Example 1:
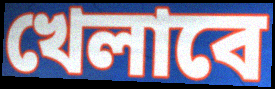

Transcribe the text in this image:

খেলাবে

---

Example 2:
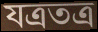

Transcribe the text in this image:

যত্রতত্র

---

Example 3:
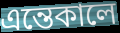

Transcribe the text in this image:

এন্তেকালে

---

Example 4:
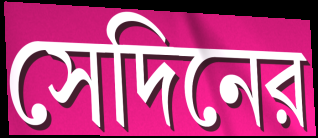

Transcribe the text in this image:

সেদিনের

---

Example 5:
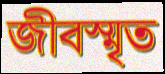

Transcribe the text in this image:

জীবস্মৃত